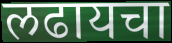
लढायचा